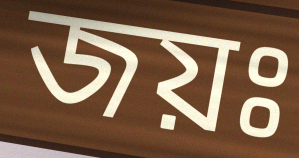
জয়ঃ